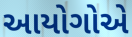
આયોગોએ